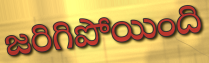
జరిగిపోయింది